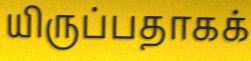
யிருப்பதாகக்